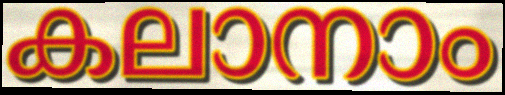
കലാനാം